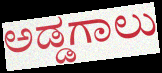
ಅಡ್ಡಗಾಲು